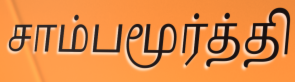
சாம்பமூர்த்தி